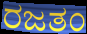
ರಜತಂ